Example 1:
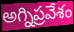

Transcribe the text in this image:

అగ్నిప్రవేశం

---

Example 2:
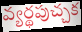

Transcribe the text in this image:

వ్యర్థపుచ్చక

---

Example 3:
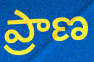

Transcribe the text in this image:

ప్రాణ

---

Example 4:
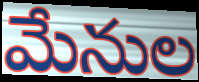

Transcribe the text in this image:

మేనుల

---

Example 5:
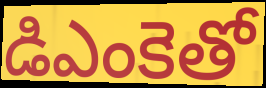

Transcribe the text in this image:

డిఎంకెతో